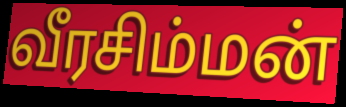
வீரசிம்மன்